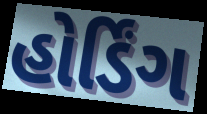
હોર્ડિંગ